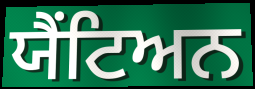
ਯੈਂਟਿਅਨ